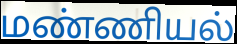
மண்ணியல்